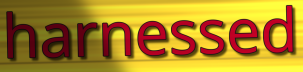
harnessed